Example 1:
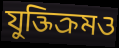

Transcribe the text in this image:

যুক্তিক্রমও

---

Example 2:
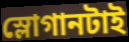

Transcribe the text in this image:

স্লোগানটাই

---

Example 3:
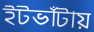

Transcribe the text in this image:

ইটভাঁটায়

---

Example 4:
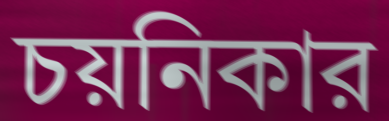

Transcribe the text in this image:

চয়নিকার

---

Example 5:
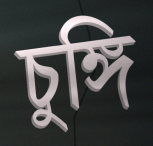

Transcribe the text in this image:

চুঙ্গি